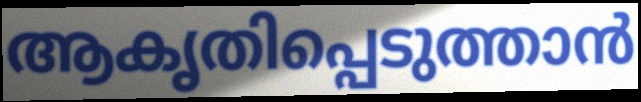
ആകൃതിപ്പെടുത്താൻ